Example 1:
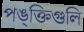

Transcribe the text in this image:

পঙ্‌ক্তিগুলি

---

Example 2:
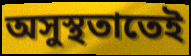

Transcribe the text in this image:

অসুস্থতাতেই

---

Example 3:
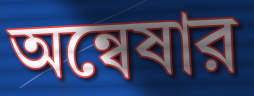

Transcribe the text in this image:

অন্বেষার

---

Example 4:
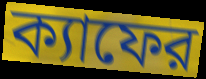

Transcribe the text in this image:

ক্যাফের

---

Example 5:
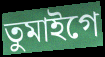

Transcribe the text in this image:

তুমাইগে